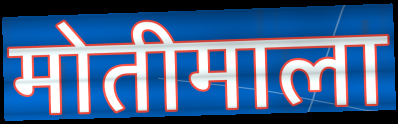
मोतीमाला